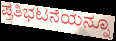
ಪ್ರತಿಭಟನೆಯನ್ನೂ